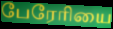
பேரேரியை